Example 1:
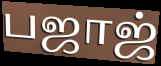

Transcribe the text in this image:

பஜாஜ்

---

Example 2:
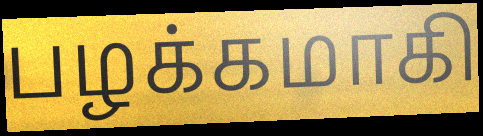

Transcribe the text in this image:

பழக்கமாகி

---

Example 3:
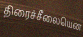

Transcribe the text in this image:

திரைச்சீலையென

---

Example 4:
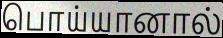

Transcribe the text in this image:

பொய்யானால்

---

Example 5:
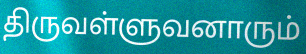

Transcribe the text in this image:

திருவள்ளுவனாரும்